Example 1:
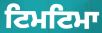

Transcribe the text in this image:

ਟਿਮਟਿਮਾ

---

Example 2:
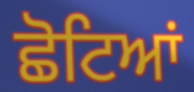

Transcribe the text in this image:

ਛੋਟਿਆਂ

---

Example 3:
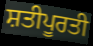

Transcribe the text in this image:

ਸ਼ਤੀਪੂਰਤੀ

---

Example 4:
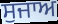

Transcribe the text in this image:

ਸੁਜਾਅ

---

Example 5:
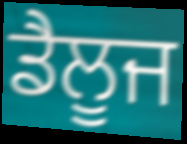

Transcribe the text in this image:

ਡੈਲੂਜ